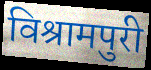
विश्रामपुरी